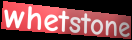
whetstone